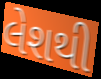
લેશથી